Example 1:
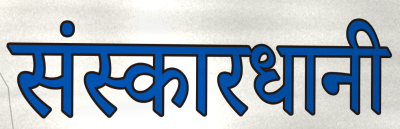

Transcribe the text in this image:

संस्कारधानी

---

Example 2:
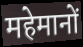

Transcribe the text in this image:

महेमानों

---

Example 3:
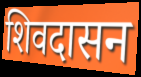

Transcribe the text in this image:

शिवदासन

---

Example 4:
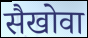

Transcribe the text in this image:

सैखोवा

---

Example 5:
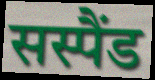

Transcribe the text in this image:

सस्पैंड